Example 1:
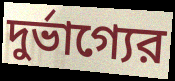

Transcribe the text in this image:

দুর্ভাগ্যের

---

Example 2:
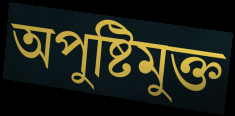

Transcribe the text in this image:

অপুষ্টিমুক্ত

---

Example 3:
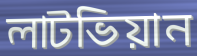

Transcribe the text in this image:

লাটভিয়ান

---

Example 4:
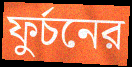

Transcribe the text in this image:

ফুর্চনের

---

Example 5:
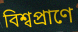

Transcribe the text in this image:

বিশ্বপ্রাণে